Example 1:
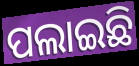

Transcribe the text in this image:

ପଲାଇଛି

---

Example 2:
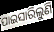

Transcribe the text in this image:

ପାଇସାରିଲୁଣି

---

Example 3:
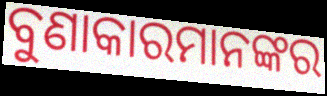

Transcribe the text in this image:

ବୁଣାକାରମାନଙ୍କର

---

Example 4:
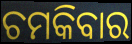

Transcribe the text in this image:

ଚମକିବାର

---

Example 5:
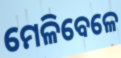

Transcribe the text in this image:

ମେଳିବେଳେ